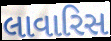
લાવારિસ